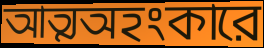
আত্মঅহংকারে